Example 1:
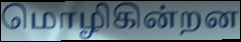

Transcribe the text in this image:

மொழிகின்றன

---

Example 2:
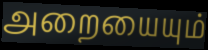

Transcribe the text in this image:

அறையையும்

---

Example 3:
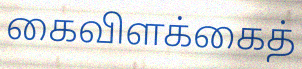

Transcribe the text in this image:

கைவிளக்கைத்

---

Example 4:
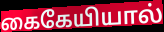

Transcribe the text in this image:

கைகேயியால்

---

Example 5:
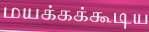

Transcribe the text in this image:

மயக்கக்கூடிய